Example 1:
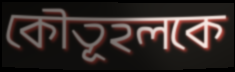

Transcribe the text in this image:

কৌতূহলকে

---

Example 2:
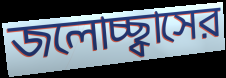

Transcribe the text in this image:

জলোচ্ছ্বাসের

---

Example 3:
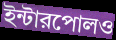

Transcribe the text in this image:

ইন্টারপোলও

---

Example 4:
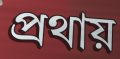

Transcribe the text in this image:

প্রথায়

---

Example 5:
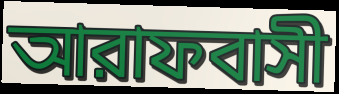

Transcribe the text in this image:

আরাফবাসী